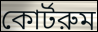
কোর্টরুম